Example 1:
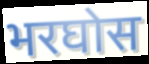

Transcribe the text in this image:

भरघोस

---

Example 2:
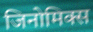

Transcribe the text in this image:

जिनोमिक्स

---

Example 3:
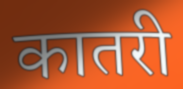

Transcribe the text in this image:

कातरी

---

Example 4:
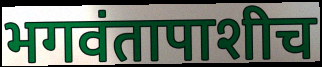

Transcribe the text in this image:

भगवंतापाशीच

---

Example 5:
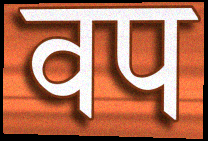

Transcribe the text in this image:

वप